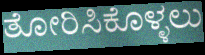
ತೋರಿಸಿಕೊಳ್ಳಲು